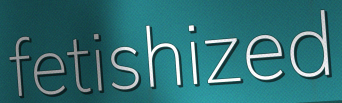
fetishized